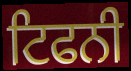
ਟਿਫਨੀ